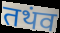
तथंव